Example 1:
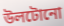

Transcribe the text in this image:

উলটোনো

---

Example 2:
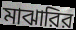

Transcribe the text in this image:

মাঝারির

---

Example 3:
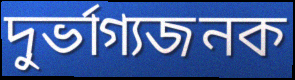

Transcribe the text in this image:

দুর্ভাগ্যজনক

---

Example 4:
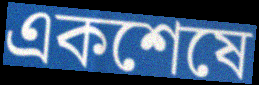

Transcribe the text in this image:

একশেষে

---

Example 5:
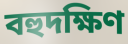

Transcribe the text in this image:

বহুদক্ষিণ